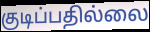
குடிப்பதில்லை